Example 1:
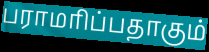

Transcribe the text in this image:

பராமரிப்பதாகும்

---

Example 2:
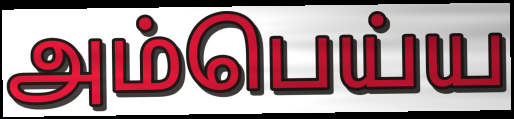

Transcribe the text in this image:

அம்பெய்ய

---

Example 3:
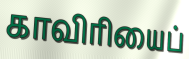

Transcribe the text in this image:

காவிரியைப்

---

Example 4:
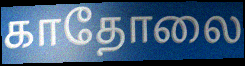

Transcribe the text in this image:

காதோலை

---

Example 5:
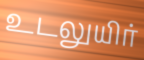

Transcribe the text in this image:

உடலுயிர்